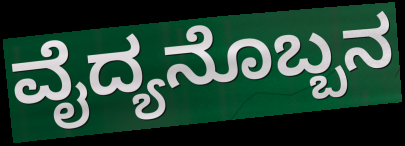
ವೈದ್ಯನೊಬ್ಬನ